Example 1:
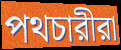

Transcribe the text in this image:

পথচারীরা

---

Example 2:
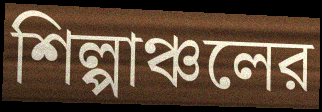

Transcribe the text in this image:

শিল্পাঞ্চলের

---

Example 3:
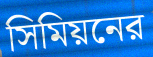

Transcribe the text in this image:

সিমিয়নের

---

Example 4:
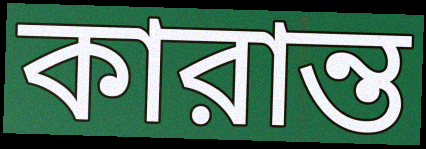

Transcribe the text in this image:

কারান্ত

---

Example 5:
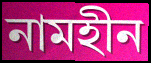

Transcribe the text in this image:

নামহীন